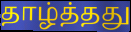
தாழ்த்தது